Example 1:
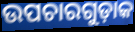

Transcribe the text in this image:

ଉପଚାରଗୁଡ଼ାକ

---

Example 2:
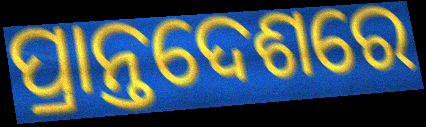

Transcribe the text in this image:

ପ୍ରାନ୍ତଦେଶରେ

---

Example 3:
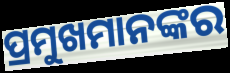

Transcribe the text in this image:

ପ୍ରମୁଖମାନଙ୍କର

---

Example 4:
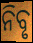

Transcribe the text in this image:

ନିବୃ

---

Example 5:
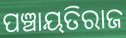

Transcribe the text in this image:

ପଞ୍ଚାୟତିରାଜ